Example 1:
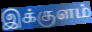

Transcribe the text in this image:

இக்குளம்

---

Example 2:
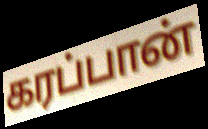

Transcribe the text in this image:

கரப்பான்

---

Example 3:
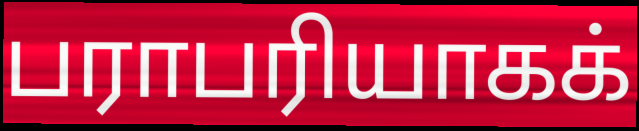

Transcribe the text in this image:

பராபரியாகக்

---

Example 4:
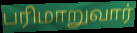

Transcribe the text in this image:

பரிமாறுவார்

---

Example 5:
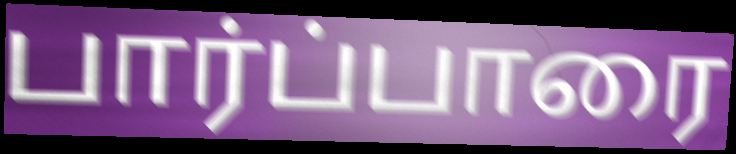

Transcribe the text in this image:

பார்ப்பாரை